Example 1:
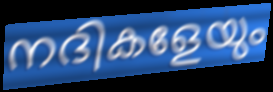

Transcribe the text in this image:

നദികളേയും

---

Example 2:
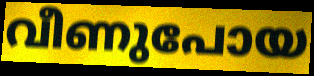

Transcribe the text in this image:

വീണുപോയ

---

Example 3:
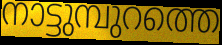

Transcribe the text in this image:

നാട്ടുമ്പുറത്തെ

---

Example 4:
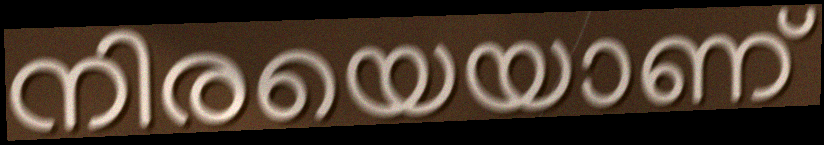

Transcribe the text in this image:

നിരയെയാണ്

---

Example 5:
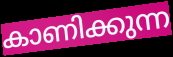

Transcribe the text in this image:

കാണിക്കുന്ന